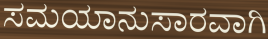
ಸಮಯಾನುಸಾರವಾಗಿ